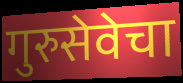
गुरुसेवेचा